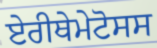
ਏਰੀਥੇਮੇਟੋਸਸ